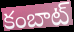
కంబాట్